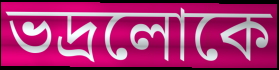
ভদ্ৰলোকে